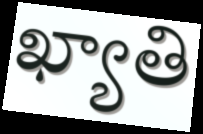
ఖ్యాతి